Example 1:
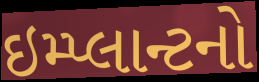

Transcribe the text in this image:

ઇમ્પ્લાન્ટનો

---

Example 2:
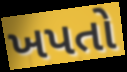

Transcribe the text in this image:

ખપતો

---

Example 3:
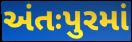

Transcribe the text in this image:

અંતઃપુરમાં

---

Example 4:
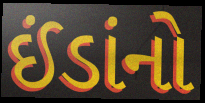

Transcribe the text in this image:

ઈંડાંનો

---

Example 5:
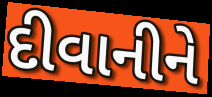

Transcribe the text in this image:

દીવાનીને